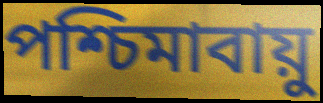
পশ্চিমাবায়ু